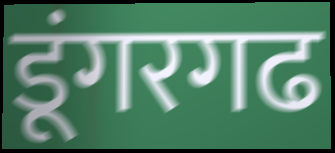
डूंगरगढ